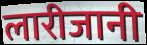
लारीजानी